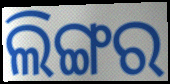
ଲିଙ୍ଗର